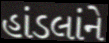
હાંડલાંને